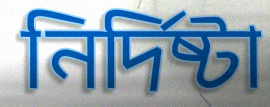
নির্দিষ্টা